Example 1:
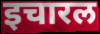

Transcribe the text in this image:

इचारल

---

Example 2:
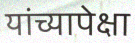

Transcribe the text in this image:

यांच्यापेक्षा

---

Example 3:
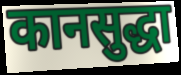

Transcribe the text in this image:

कानसुद्धा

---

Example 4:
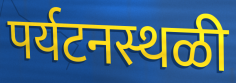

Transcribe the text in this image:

पर्यटनस्थळी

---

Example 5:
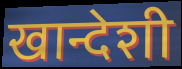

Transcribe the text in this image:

खान्देशी